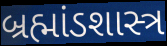
બ્રહ્માંડશાસ્ત્ર